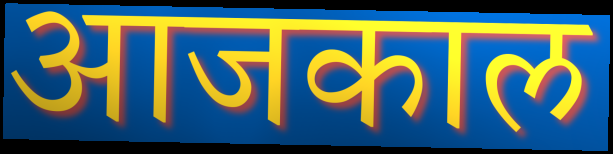
आजकाल